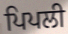
ਪਿਪਲੀ